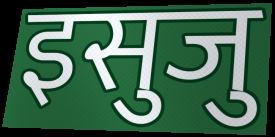
इसुजु